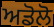
ਅਡੋਲੋ